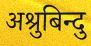
अश्रुबिन्दु